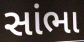
સાંભા